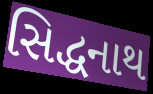
સિદ્ધનાથ